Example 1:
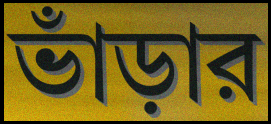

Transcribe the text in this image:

ভাঁড়ার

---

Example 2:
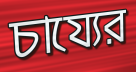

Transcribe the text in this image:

চায্যের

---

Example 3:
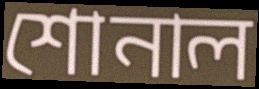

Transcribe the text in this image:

শোনাল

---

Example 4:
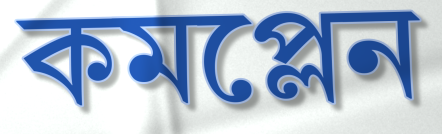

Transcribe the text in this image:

কমপ্লেন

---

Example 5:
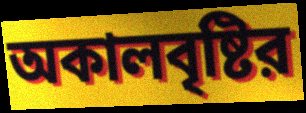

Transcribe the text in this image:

অকালবৃষ্টির